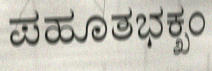
ಪಹೂತಭಕ್ಖಂ